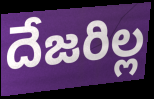
దేజరిల్ల